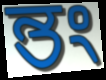
ন্তং